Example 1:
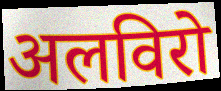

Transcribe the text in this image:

अलविरो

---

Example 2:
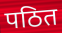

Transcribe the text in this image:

पठित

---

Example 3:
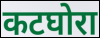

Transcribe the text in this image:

कटघोरा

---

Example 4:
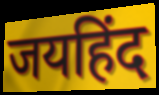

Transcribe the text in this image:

जयहिंद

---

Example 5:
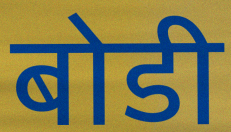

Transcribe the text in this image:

बोडी